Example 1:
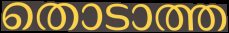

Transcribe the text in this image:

തൊടാത്ത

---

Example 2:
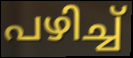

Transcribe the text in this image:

പഴിച്ച്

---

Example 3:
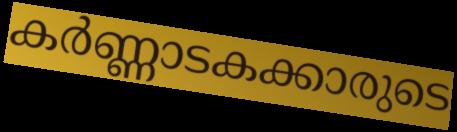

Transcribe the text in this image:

കർണ്ണാടകക്കാരുടെ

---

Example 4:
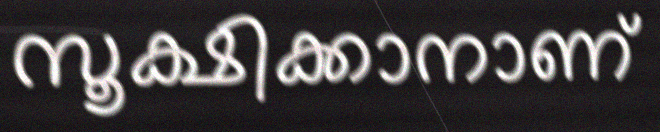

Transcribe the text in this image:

സൂക്ഷിക്കാനാണ്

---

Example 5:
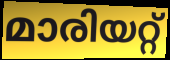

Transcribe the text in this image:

മാരിയറ്റ്